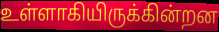
உள்ளாகியிருக்கின்றன